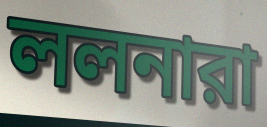
ললনারা